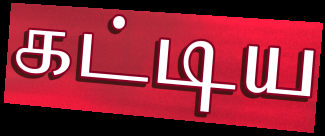
கட்டிய